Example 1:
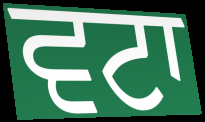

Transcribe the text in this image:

ਵਟਾ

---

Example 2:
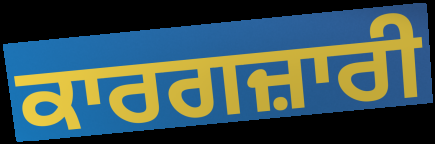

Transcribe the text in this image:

ਕਾਰਗਜ਼ਾਰੀ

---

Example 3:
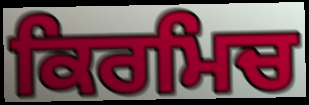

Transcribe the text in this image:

ਕਿਰਮਿਚ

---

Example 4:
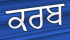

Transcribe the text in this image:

ਕਰਬ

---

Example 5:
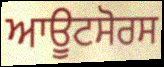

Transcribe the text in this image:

ਆਉੂਟਸੋਰਸ